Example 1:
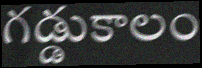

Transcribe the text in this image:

గడ్డుకాలం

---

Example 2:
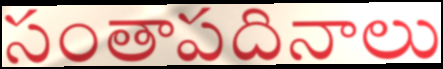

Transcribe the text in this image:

సంతాపదినాలు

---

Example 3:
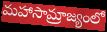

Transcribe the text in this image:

మహాసామ్రాజ్యంలో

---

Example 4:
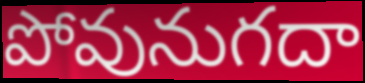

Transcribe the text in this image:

పోవునుగదా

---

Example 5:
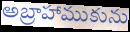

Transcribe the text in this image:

అబ్రాహాముకును